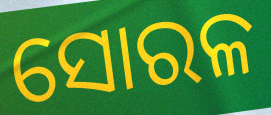
ସୋରଳ